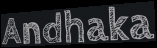
Andhaka